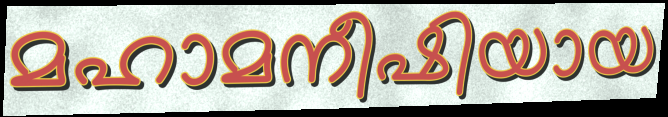
മഹാമനീഷിയായ